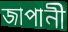
জাপানী